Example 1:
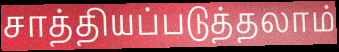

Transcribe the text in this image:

சாத்தியப்படுத்தலாம்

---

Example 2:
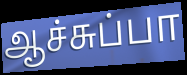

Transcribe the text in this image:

ஆச்சுப்பா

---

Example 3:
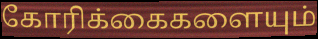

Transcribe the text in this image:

கோரிக்கைகளையும்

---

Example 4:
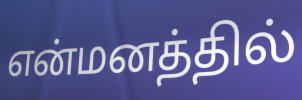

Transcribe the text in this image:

என்மனத்தில்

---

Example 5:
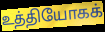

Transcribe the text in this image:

உத்தியோகக்